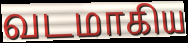
வடமாகிய